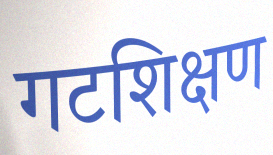
गटशिक्षण